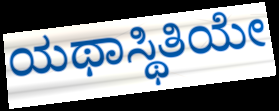
ಯಥಾಸ್ಥಿತಿಯೇ